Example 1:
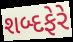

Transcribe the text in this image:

શબ્દફેરે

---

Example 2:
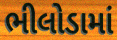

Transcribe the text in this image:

ભીલોડામાં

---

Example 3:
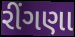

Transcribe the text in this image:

રીંગણા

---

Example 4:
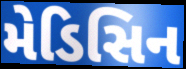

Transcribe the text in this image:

મેડિસિન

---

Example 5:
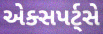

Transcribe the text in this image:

એક્સપર્ટ્સે